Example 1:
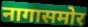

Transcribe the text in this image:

नागासमोर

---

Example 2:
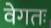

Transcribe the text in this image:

वेगतः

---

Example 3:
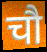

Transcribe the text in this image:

चौ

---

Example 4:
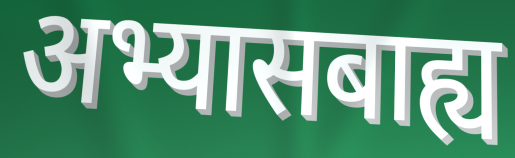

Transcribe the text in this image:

अभ्यासबाह्य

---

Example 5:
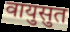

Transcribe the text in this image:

वायुसुत